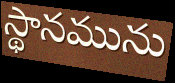
స్థానమును